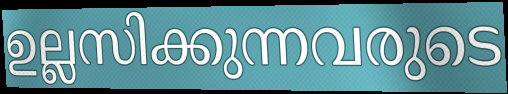
ഉല്ലസിക്കുന്നവരുടെ